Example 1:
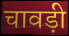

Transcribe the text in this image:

चावड़ी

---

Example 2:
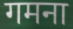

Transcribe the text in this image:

गमना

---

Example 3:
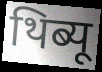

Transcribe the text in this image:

थिब्यू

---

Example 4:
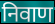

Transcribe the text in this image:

निवाण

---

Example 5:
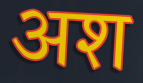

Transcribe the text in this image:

अश